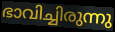
ഭാവിച്ചിരുന്നു